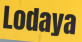
Lodaya